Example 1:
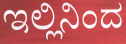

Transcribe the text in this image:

ಇಲ್ಲಿನಿಂದ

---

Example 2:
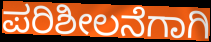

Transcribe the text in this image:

ಪರಿಶೀಲನೆಗಾಗಿ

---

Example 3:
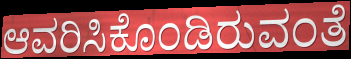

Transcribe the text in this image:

ಆವರಿಸಿಕೊಂಡಿರುವಂತೆ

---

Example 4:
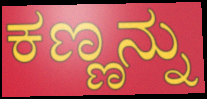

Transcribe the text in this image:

ಕಣ್ಣನ್ನು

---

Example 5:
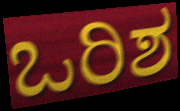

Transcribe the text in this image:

ಒರಿಶ